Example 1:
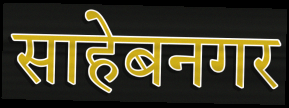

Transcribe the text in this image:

साहेबनगर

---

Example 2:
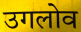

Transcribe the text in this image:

उगलोव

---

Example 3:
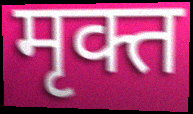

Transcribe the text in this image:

मृक्त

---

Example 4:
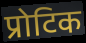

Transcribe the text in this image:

प्रोटिक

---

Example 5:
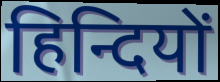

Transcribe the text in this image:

हिन्दियों